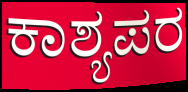
ಕಾಶ್ಯಪರ